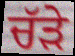
ਚੱੜੇ